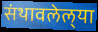
संथावलेल्या